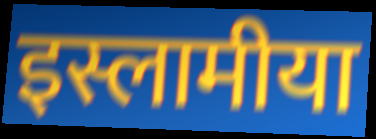
इस्लामीया